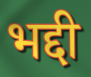
भद्दी